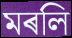
মৰলি